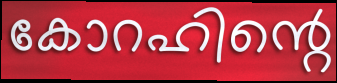
കോറഹിന്റെ